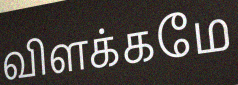
விளக்கமே